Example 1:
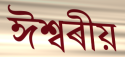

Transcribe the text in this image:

ঈশ্বৰীয়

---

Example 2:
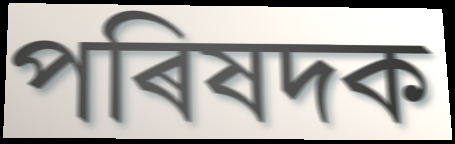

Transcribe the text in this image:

পৰিষদক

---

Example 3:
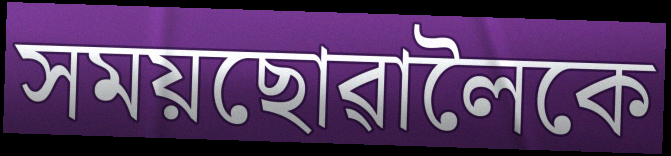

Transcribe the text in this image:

সময়ছোৱালৈকে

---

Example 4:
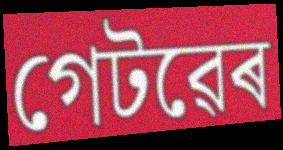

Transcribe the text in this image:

গেটৱেৰ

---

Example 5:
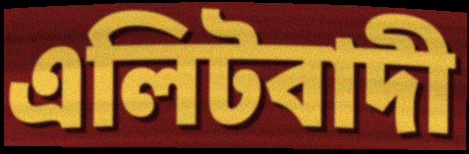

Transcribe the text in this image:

এলিটবাদী